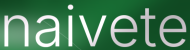
naivete